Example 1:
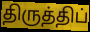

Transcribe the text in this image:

திருத்திப்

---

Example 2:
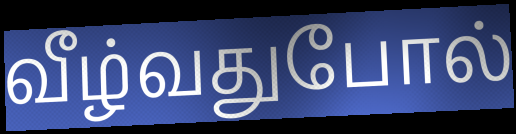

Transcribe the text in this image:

வீழ்வதுபோல்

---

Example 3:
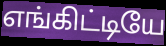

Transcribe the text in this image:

எங்கிட்டியே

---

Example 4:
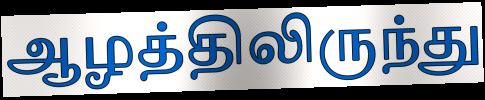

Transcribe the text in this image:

ஆழத்திலிருந்து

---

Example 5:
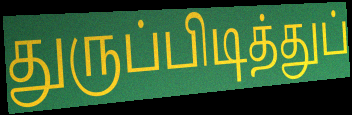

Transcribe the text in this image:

துருப்பிடித்துப்